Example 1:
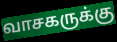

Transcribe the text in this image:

வாசகருக்கு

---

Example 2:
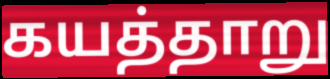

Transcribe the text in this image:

கயத்தாறு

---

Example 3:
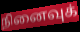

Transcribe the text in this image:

நினைவுக்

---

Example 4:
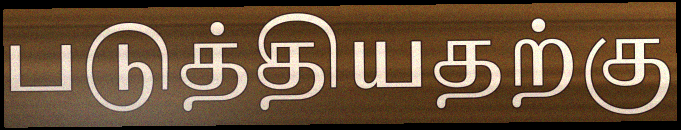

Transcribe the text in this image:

படுத்தியதற்கு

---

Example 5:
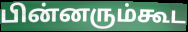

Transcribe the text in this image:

பின்னரும்கூட